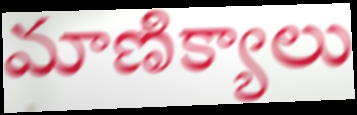
మాణిక్యాలు